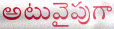
అటువైపుగా